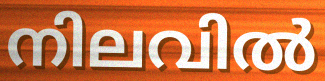
നിലവിൽ